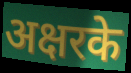
अक्षरके